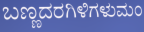
ಬಣ್ಣದರಗಿಳಿಗಳುಮಂ